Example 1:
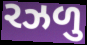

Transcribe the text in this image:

રઝળુ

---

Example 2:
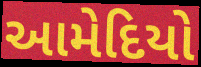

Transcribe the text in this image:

આમેદિયો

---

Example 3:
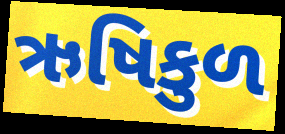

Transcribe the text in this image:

ઋષિકુળ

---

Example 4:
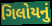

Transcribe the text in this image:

ગિલોયનું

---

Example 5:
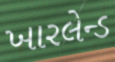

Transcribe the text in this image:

ખારલેન્ડ